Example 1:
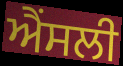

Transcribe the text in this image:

ਐਂਸਲੀ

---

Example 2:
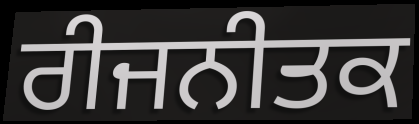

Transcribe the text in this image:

ਰੀਜਨੀਤਕ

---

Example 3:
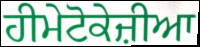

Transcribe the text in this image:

ਹੀਮੇਟੋਕੇਜ਼ੀਆ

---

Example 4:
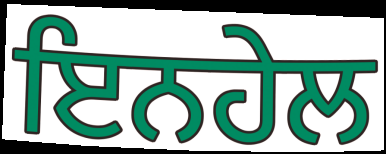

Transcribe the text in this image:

ਇਨਹੇਲ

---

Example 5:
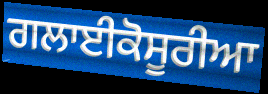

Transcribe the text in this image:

ਗਲਾਈਕੋਸੂਰੀਆ